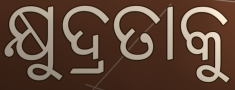
କ୍ଷୁଦ୍ରତାକୁ